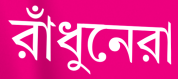
রাঁধুনেরা